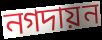
নগদায়ন